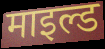
माइल्ड